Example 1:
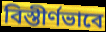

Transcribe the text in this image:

বিস্তীর্ণভাবে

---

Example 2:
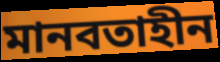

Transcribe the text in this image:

মানবতাহীন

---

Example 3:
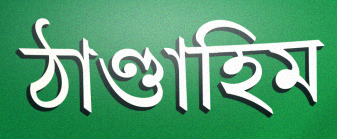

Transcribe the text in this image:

ঠাণ্ডাহিম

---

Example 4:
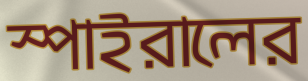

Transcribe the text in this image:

স্পাইরালের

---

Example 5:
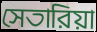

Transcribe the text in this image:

সেতারিয়া